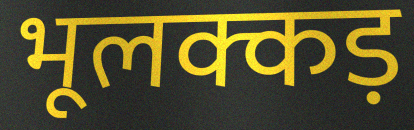
भूलक्कड़